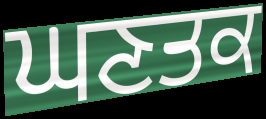
ਘਣਤਕ